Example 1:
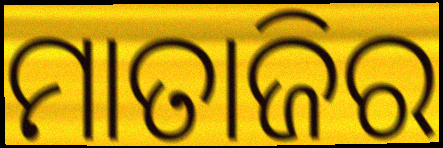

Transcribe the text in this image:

ମାତାଜିର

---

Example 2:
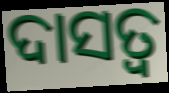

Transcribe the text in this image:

ଦାସତ୍ୱ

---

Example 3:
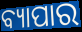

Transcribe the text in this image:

ବ୍ୟାପାର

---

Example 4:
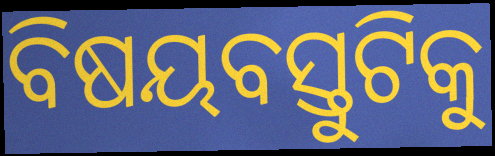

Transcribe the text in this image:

ବିଷୟବସ୍ତୁଟିକୁ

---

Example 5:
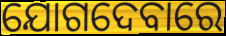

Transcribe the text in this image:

ଯୋଗଦେବାରେ